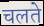
चलते